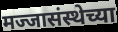
मज्जासंस्थेच्या